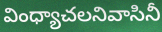
వింధ్యాచలనివాసినీ